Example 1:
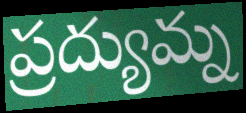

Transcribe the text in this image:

ప్రద్యుమ్న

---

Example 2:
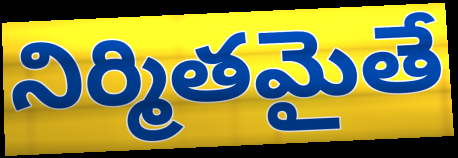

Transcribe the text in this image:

నిర్మితమైతే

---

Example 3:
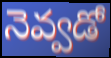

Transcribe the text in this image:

నెవ్వడో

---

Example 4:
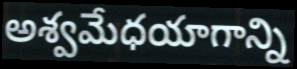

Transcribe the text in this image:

అశ్వమేధయాగాన్ని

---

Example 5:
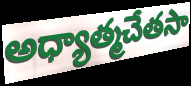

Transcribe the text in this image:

అధ్యాత్మచేతసా